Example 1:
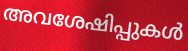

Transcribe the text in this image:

അവശേഷിപ്പുകൾ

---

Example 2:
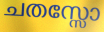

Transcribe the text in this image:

ചതസ്സോ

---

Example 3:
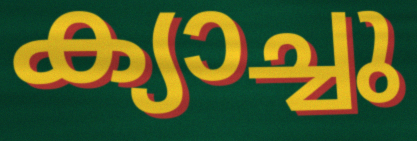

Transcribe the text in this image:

ക്യാച്ചു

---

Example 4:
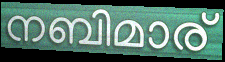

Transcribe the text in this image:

നബിമാര്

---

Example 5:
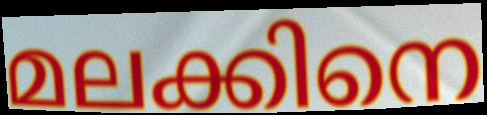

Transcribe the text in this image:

മലക്കിനെ